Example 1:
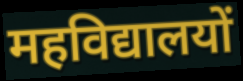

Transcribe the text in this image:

महविद्यालयों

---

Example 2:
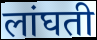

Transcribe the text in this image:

लांघती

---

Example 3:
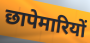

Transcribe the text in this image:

छापेमारियों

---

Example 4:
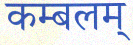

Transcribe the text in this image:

कम्बलम्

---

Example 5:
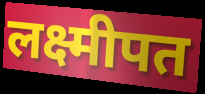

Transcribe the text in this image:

लक्ष्मीपत